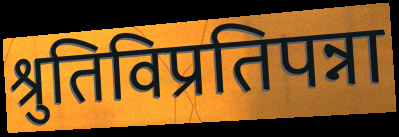
श्रुतिविप्रतिपन्ना